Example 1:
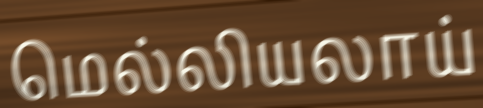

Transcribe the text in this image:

மெல்லியலாய்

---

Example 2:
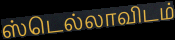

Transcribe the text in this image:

ஸ்டெல்லாவிடம்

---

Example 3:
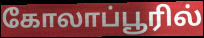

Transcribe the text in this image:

கோலாப்பூரில்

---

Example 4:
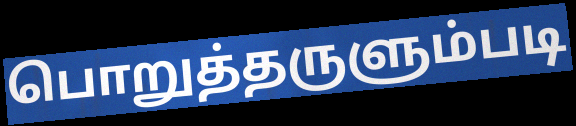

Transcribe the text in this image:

பொறுத்தருளும்படி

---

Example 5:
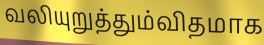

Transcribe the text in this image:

வலியுறுத்தும்விதமாக